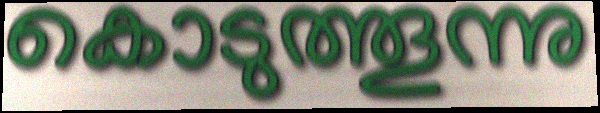
കൊടുത്തൂന്നു